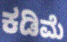
ಕಡಿಮೆ